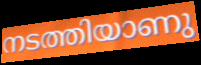
നടത്തിയാണു